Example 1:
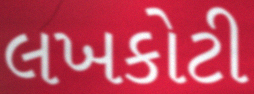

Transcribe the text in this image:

લખકોટી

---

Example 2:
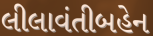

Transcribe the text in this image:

લીલાવંતીબહેન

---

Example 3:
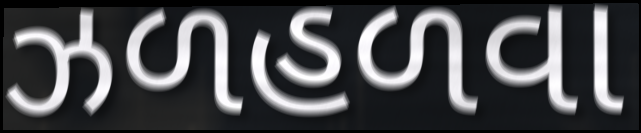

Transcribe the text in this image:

ઝળહળવા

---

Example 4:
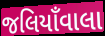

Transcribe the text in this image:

જલિયાઁવાલા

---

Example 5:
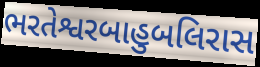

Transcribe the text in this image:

ભરતેશ્વરબાહુબલિરાસ